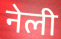
नेली